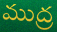
ముద్ర